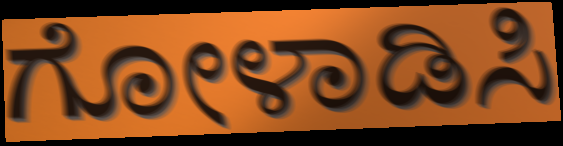
ಗೋಳಾಡಿಸಿ